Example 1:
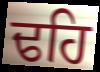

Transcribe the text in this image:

ਢਹਿ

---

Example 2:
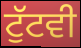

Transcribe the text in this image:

ਟੁੱਟਵੀ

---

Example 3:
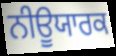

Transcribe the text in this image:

ਨੀਊਯਾਰਕ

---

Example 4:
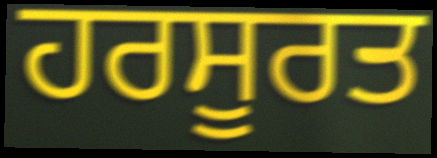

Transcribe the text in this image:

ਹਰਸੂਰਤ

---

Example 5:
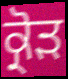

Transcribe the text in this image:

ਕ੍ਰੋੜ